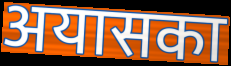
अयासका